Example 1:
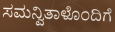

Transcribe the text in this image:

ಸಮನ್ವಿತಾಳೊಂದಿಗೆ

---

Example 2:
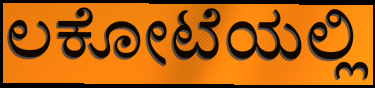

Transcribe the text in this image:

ಲಕೋಟೆಯಲ್ಲಿ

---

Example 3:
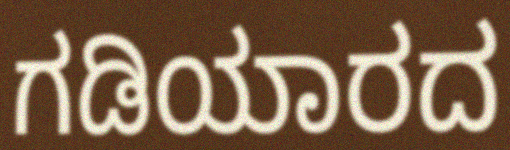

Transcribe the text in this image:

ಗಡಿಯಾರದ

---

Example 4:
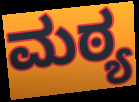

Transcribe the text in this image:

ಮಠ್ಯ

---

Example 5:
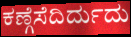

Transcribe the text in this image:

ಕಣ್ಗೆಸೆದಿರ್ದುದು